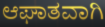
ಆಘಾತವಾಗಿ